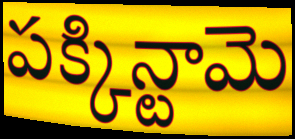
పక్కిన్టామె